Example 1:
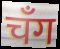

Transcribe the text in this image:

चँग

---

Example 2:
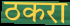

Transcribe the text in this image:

ठकरा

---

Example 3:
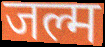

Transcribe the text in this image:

जल्म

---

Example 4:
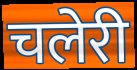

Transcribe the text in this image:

चलेरी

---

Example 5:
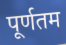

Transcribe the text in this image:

पूर्णतम